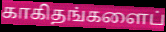
காகிதங்களைப்